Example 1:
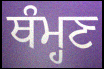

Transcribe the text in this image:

ਥੰਮ੍ਹਣ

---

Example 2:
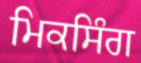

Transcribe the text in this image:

ਮਿਕਸਿੰਗ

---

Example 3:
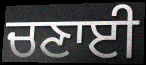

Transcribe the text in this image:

ਚਣਾਈ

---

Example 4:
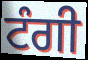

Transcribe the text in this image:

ਟੰਗੀ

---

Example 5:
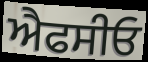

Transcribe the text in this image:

ਐਫਸੀਓ